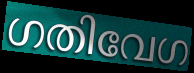
ഗതിവേഗ